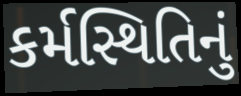
કર્મસ્થિતિનું